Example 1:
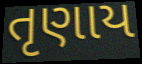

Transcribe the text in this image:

તૃણાય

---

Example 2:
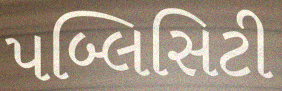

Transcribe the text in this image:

પબ્લિસિટી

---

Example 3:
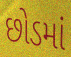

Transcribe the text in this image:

છોડમાં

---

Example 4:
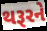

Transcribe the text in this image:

થરૂરને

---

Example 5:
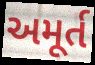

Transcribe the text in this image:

અમૂર્ત